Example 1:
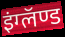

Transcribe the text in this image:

इंग्लॅण्ड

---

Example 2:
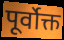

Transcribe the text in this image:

पूर्वोक्त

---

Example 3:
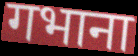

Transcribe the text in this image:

गभाना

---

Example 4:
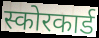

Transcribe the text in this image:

स्कोरकार्ड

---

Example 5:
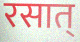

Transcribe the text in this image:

रसात्